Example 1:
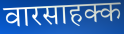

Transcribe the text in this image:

वारसाहक्क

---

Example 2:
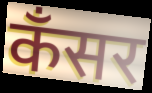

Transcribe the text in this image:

कँसर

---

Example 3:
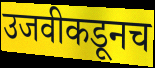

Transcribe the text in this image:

उजवीकडूनच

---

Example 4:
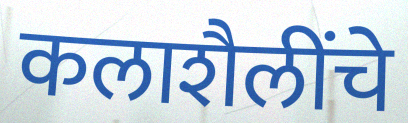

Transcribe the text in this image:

कलाशैलींचे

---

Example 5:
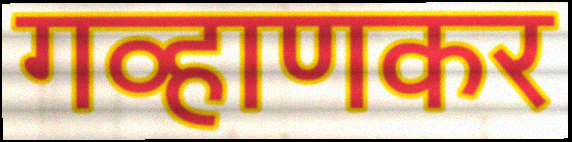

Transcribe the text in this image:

गव्हाणकर